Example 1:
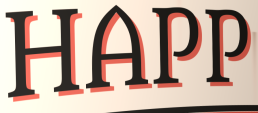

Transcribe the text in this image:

HAPP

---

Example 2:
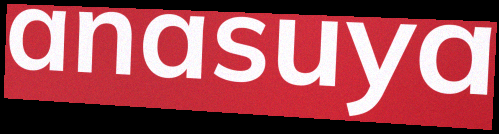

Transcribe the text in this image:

anasuya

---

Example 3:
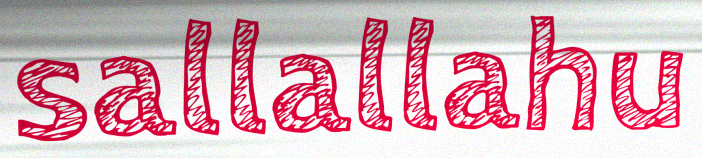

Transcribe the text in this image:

sallallahu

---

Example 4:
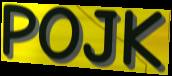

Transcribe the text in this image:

POJK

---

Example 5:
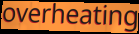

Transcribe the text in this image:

overheating